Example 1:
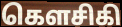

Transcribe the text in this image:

கௌசிகி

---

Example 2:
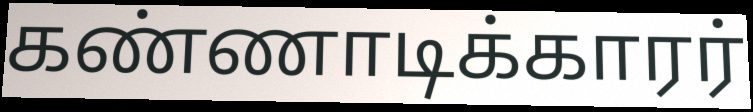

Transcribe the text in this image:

கண்ணாடிக்காரர்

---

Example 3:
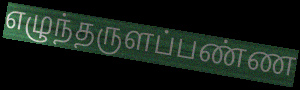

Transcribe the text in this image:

எழுந்தருளப்பண்ண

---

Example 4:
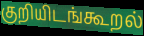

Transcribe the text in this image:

குறியிடங்கூறல்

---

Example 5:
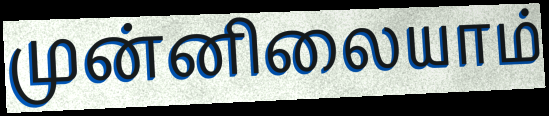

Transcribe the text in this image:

முன்னிலையாம்